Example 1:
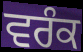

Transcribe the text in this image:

ਵਰੰਕ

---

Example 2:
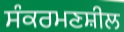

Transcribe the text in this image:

ਸੰਕਰਮਣਸ਼ੀਲ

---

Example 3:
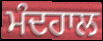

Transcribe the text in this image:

ਮੰਦਹਾਲ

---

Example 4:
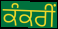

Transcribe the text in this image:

ਕੰਕਰੀਂ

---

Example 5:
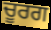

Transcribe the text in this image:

ਚੂਰਗ